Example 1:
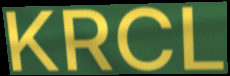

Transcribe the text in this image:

KRCL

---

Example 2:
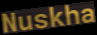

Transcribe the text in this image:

Nuskha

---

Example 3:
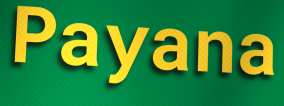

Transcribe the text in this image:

Payana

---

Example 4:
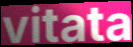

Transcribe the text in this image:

vitata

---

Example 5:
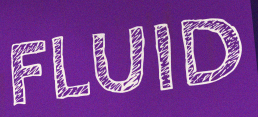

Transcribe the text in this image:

FLUID